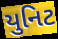
યુનિટ